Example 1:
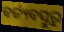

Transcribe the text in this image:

ବର୍ଜ୍ୟବସ୍ତୁରୁ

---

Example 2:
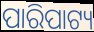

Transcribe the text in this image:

ପାରିପାଟ୍ୟ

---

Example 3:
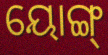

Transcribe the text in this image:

ୟୋଙ୍ଗ୍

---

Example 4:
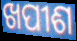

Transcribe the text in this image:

ଖପୀଶ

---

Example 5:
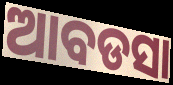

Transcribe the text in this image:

ଆବଡସା